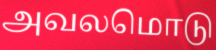
அவலமொடு